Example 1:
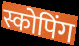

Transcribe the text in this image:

स्कोपिंग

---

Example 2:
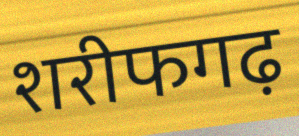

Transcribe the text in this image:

शरीफगढ़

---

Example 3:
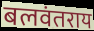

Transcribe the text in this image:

बलवंतराय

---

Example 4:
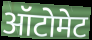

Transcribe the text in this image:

ऑटोमेट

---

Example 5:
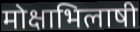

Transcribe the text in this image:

मोक्षाभिलाषी